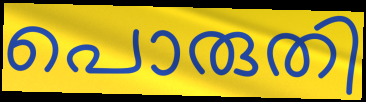
പൊരുതി